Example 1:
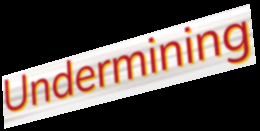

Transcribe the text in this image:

Undermining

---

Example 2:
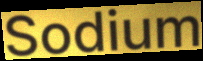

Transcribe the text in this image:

Sodium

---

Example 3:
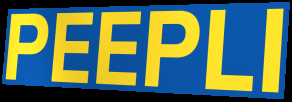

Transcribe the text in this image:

PEEPLI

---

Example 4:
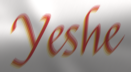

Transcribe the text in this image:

Yeshe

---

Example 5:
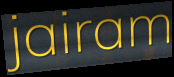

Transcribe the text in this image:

jairam